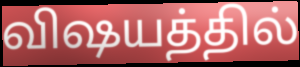
விஷயத்தில்